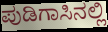
ಪುಡಿಗಾಸಿನಲ್ಲಿ